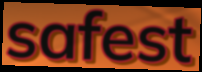
safest